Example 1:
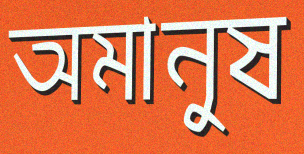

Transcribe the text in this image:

অমানুষ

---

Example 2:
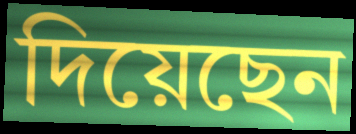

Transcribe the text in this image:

দিয়েছেন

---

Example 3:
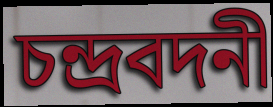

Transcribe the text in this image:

চন্দ্রবদনী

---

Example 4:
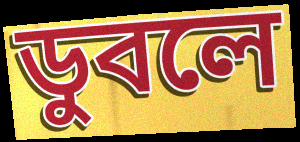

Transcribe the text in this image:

ডুবলে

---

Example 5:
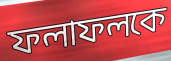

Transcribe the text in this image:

ফলাফলকে